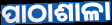
ପାଠାଶାଳା